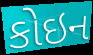
કોઇન